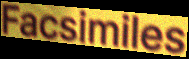
Facsimiles